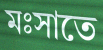
মঃসাতে